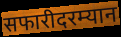
सफारीदरम्यान